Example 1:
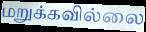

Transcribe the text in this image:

மறுக்கவில்லை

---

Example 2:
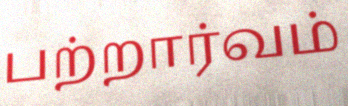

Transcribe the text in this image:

பற்றார்வம்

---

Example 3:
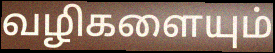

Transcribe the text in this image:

வழிகளையும்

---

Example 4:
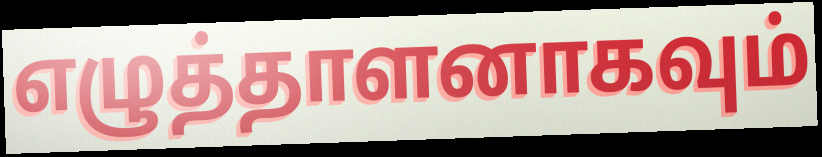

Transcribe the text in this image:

எழுத்தாளனாகவும்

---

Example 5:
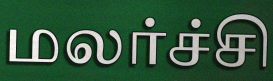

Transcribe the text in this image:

மலர்ச்சி